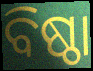
ବିଷ୍ଠା